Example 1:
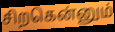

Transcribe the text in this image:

சிறகென்னும்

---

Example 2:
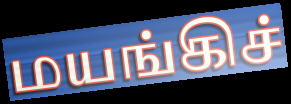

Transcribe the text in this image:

மயங்கிச்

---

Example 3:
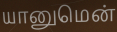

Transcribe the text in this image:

யானுமென்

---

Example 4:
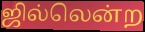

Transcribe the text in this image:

ஜில்லென்ற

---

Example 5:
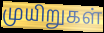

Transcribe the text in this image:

முயிறுகள்